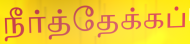
நீர்த்தேக்கப்